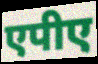
एपीए